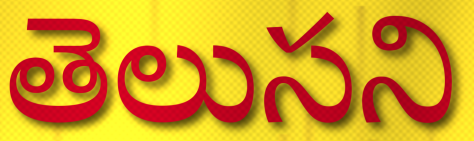
తెలుసని